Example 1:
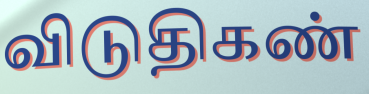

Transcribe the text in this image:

விடுதிகண்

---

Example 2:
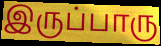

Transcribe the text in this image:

இருப்பாரு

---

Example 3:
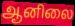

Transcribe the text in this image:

ஆனிலை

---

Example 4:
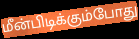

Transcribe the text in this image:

மீன்பிடிக்கும்போது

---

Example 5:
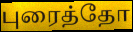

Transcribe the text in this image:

புரைத்தோ